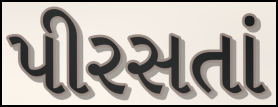
પીરસતાં